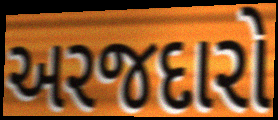
અરજદારો